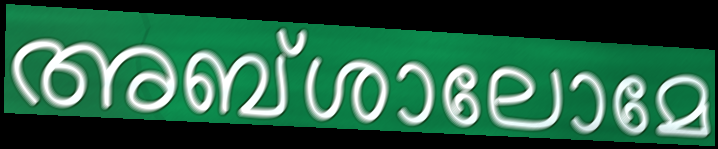
അബ്ശാലോമേ